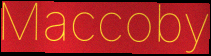
Maccoby